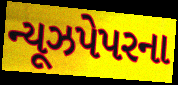
ન્યૂઝપેપરના